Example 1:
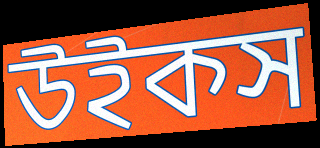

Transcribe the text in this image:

উইকস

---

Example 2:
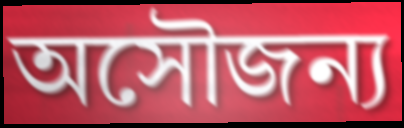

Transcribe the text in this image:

অসৌজন্য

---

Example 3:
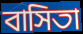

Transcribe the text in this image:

বাসিতা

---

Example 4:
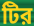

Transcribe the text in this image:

টির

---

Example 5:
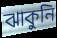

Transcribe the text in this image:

ঝাকুনি